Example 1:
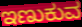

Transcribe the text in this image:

ಇಣುಕುವ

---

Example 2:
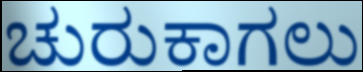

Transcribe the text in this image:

ಚುರುಕಾಗಲು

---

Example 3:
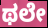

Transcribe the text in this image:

ಥಲೇ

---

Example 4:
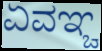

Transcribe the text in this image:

ಏವಞ್ಚ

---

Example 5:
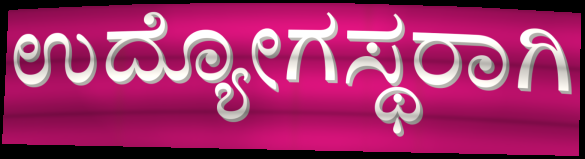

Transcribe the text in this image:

ಉದ್ಯೋಗಸ್ಥರಾಗಿ